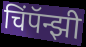
चिंपॅन्झी